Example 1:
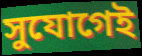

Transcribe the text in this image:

সুযোগেই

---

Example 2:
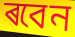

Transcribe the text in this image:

ৰবেন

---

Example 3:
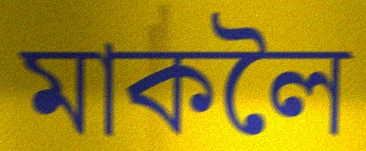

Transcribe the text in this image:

মাকলৈ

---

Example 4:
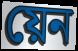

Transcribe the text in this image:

য়েন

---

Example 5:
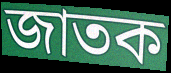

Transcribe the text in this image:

জাতক